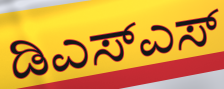
ಡಿಎಸ್ಎಸ್